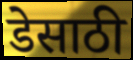
डेसाठी